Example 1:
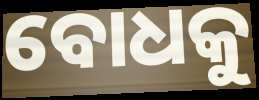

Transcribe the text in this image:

ବୋଧକୁ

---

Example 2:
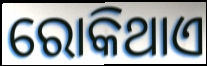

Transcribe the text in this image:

ରୋକିଥାଏ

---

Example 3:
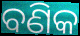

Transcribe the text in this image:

ବଣିକ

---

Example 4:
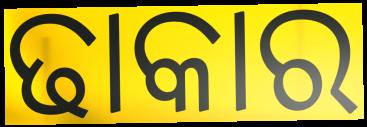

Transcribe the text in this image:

ଢାକାର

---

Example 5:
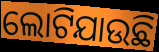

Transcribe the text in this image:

ଲୋଟିଯାଉଛି